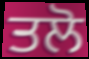
ਤਲੋ